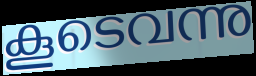
കൂടെവന്നു